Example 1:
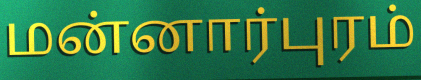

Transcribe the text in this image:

மன்னார்புரம்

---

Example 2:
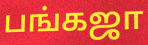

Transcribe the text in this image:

பங்கஜா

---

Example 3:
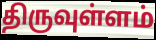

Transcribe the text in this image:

திருவுள்ளம்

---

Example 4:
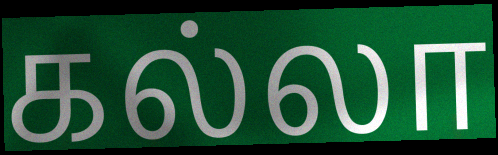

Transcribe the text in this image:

கல்லா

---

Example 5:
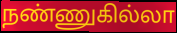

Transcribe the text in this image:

நண்ணுகில்லா